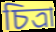
চিত্রা